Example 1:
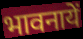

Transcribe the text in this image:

भावनायें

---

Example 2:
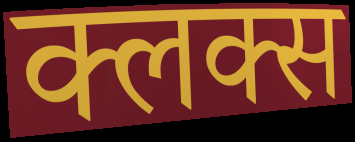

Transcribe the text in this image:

क्लक्स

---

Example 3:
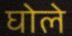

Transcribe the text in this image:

घोले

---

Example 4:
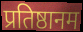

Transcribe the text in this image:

प्रतिष्ठानम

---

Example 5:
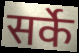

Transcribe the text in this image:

सर्के